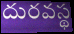
దురవస్థ